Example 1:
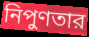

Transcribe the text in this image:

নিপুণতার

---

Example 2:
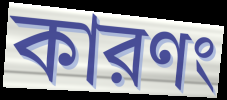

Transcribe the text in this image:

কারণং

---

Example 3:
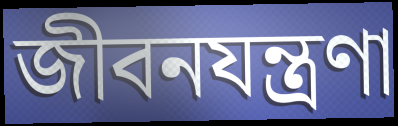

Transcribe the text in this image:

জীবনযন্ত্রণা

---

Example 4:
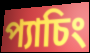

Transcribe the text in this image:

প্যাচিং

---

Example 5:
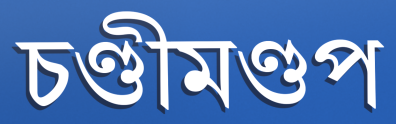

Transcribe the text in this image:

চণ্ডীমণ্ডপ